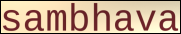
sambhava